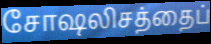
சோஷலிசத்தைப்